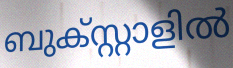
ബുക്സ്റ്റാളിൽ